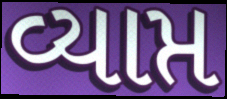
વ્યાપ્ત